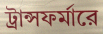
ট্রান্সফর্মারে